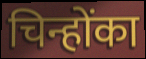
चिन्होंका